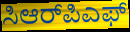
ಸಿಆರ್‌ಪಿಎಫ್